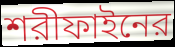
শরীফাইনের